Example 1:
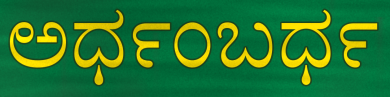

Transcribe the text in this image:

ಅರ್ಧಂಬರ್ಧ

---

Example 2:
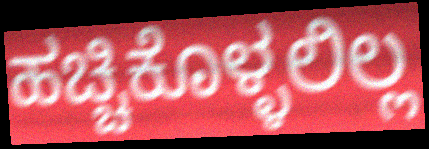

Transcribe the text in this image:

ಹಚ್ಚಿಕೊಳ್ಳಲಿಲ್ಲ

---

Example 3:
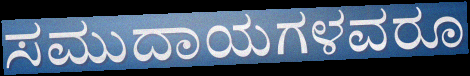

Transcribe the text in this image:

ಸಮುದಾಯಗಳವರೂ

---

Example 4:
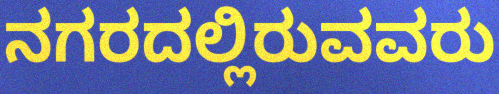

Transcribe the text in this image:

ನಗರದಲ್ಲಿರುವವರು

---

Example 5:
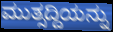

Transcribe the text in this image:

ಮುತ್ಸದ್ದಿಯನ್ನು